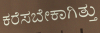
ಕರೆಸಬೇಕಾಗಿತ್ತು